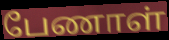
பேணாள்